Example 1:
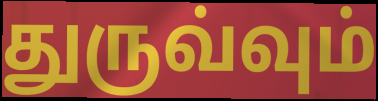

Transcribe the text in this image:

துருவ்வும்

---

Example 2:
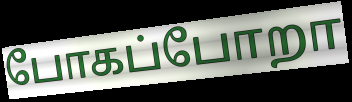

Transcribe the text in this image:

போகப்போறா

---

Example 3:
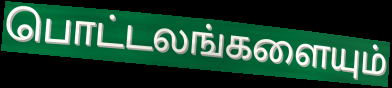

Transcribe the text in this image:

பொட்டலங்களையும்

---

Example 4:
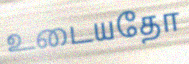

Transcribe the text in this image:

உடையதோ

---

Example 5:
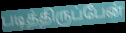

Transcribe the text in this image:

படித்திருப்பேன்